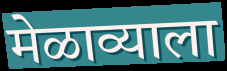
मेळाव्याला